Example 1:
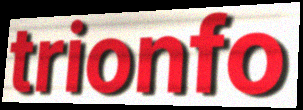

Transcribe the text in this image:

trionfo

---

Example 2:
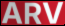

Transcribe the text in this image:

ARV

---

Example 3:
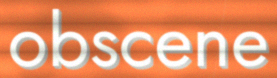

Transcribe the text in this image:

obscene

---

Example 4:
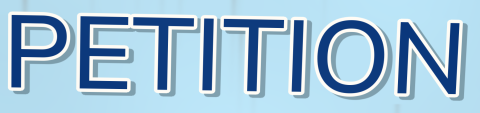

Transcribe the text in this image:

PETITION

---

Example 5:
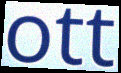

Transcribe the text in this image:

ott